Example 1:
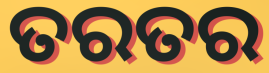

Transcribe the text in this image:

ତରତର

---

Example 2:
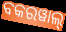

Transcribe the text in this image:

ବକରୱାଲ୍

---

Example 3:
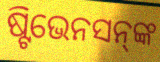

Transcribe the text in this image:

ଷ୍ଟିଭେନସନ୍‍ଙ୍କ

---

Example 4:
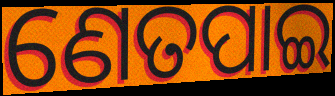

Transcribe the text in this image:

ଣେତପାଇ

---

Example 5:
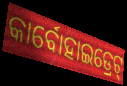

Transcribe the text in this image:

କାର୍ବୋହାଇଡ୍ରେଟ୍